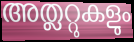
അത്ലറ്റുകളും